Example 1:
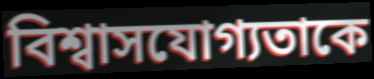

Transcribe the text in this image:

বিশ্বাসযোগ্যতাকে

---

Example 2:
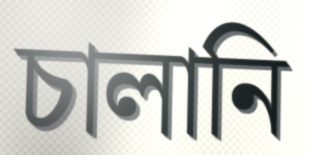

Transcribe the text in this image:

চালানি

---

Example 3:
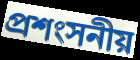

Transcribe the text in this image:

প্রশংসনীয়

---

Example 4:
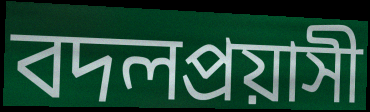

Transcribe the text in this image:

বদলপ্রয়াসী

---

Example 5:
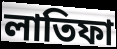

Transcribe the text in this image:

লাতিফা